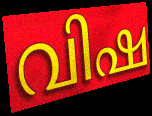
വിഷ